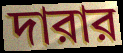
দারার